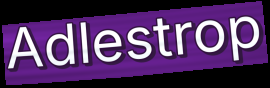
Adlestrop